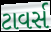
ટાવર્સ